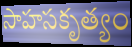
సాహసకృత్యం